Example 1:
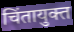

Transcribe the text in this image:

चिंतायुक्त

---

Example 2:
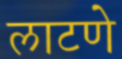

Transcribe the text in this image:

लाटणे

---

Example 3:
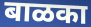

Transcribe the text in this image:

बाळका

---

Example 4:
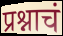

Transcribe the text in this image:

प्रश्नाचं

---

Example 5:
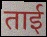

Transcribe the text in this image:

ताई